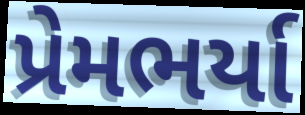
પ્રેમભર્યા